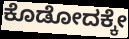
ಕೊಡೋದಕ್ಕೇ